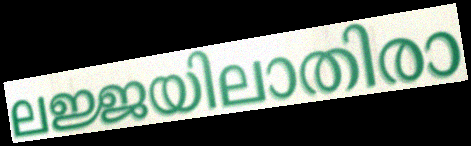
ലജ്ജയിലാതിരാ